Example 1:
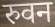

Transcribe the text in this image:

रुवन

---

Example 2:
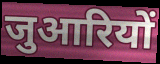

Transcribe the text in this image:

जुआरियों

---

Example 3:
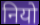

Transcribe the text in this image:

नियो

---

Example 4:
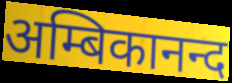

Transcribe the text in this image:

अम्बिकानन्द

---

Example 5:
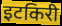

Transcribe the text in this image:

इटकिरी